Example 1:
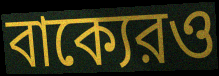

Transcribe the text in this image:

বাক্যেরও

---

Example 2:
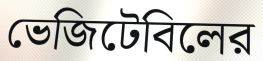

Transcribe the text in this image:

ভেজিটেবিলের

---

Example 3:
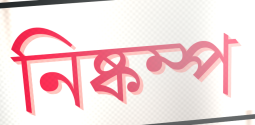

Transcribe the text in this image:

নিষ্কম্প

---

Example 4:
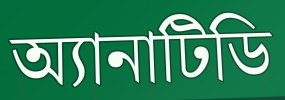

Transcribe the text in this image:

অ্যানাটিডি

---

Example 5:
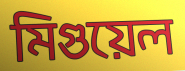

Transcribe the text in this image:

মিগুয়েল